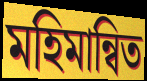
মহিমান্বিত